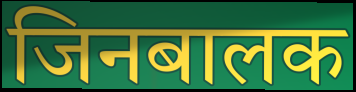
जिनबालक